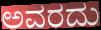
ಅವರದು